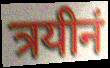
त्रयीनं